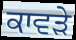
ਕਾਵੜੇ